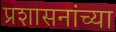
प्रशासनांच्या